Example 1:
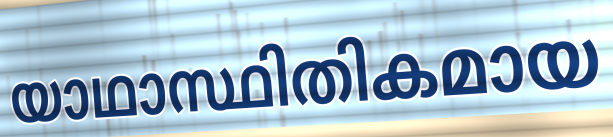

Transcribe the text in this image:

യാഥാസ്ഥിതികമായ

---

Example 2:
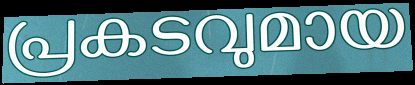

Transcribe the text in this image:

പ്രകടവുമായ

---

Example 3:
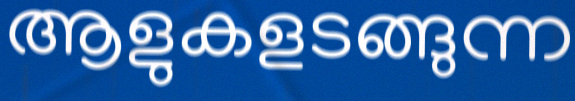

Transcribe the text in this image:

ആളുകളടങ്ങുന്ന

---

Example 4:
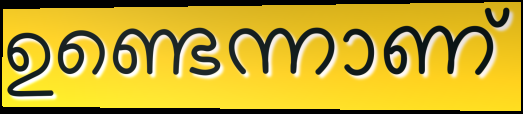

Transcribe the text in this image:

ഉണ്ടെന്നാണ്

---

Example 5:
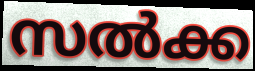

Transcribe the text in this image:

സൽക്ക